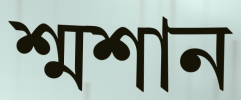
শ্মশান